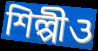
শিল্পীও